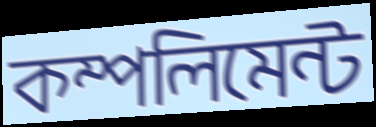
কম্পলিমেন্ট